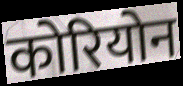
कोरियोन